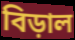
বিড়াল